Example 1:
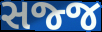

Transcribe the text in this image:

સજ્જ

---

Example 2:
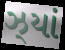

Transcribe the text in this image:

ઝ્યાં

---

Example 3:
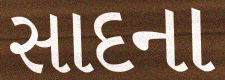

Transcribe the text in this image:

સાદના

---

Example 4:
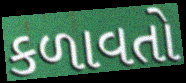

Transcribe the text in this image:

કળાવતો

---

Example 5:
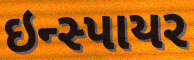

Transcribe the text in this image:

ઇન્સ્પાયર